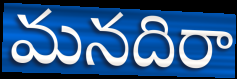
మనదిరా